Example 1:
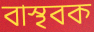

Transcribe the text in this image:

বাস্থবক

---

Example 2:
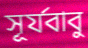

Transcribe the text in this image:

সূর্যবাবু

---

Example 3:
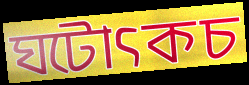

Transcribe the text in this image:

ঘটোৎকচ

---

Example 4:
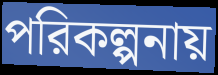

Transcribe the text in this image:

পরিকল্পনায়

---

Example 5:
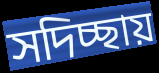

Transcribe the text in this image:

সদিচ্ছায়